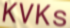
KVKs